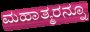
ಮಹಾತ್ಮರನ್ನೂ